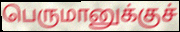
பெருமானுக்குச்